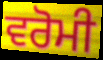
ਵਰੋਮੀ